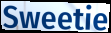
Sweetie